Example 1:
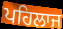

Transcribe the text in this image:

ਪਹਿਲਾਜ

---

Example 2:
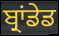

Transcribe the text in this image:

ਬ੍ਰਾਂਡੇਡ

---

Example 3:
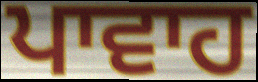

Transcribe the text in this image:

ਪਾਵਾਹ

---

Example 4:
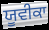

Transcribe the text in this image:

ਯੂਵੀਕਾ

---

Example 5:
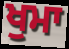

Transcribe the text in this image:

ਖੁਮਾ